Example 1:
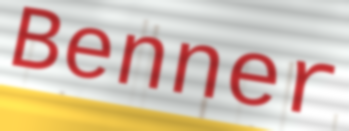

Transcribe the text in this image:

Benner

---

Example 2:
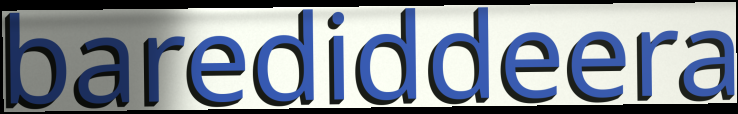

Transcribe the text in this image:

barediddeera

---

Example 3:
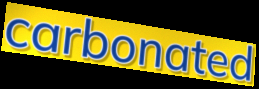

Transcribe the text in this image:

carbonated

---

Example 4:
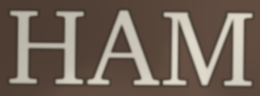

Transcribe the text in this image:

HAM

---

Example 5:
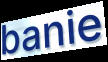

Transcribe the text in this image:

banie